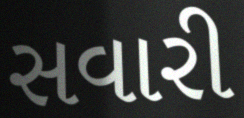
સવારી